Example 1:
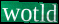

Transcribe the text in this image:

wotld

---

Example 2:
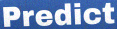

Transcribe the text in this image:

Predict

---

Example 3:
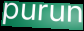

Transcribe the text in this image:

purun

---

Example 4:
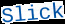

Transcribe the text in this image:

Slick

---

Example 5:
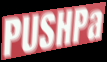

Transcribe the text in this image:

PUSHPa